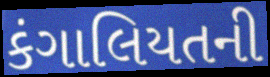
કંગાલિયતની